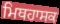
ਮਿਥਹਾਸਕ